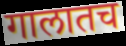
गालातच